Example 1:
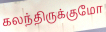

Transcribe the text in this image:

கலந்திருக்குமோ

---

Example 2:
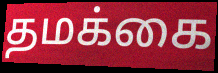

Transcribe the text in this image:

தமக்கை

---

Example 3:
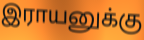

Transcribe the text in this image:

இராயனுக்கு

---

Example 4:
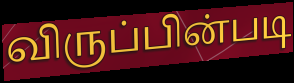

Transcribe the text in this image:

விருப்பின்படி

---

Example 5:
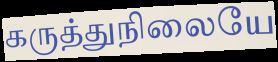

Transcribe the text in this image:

கருத்துநிலையே